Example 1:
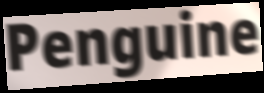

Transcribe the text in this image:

Penguine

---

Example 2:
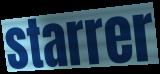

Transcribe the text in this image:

starrer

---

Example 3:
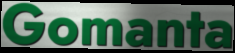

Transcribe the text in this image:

Gomanta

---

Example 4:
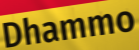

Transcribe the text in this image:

Dhammo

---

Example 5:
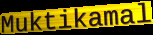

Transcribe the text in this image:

Muktikamal